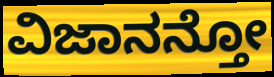
ವಿಜಾನನ್ತೋ